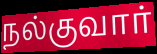
நல்குவார்